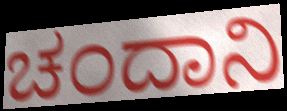
ಚಂದಾನಿ